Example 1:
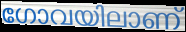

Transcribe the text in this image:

ഗോവയിലാണ്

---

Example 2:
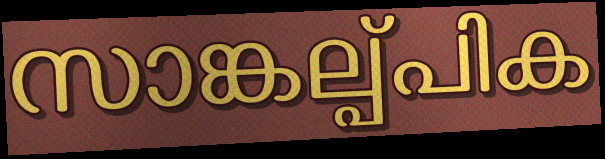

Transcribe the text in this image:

സാങ്കല്പ്പിക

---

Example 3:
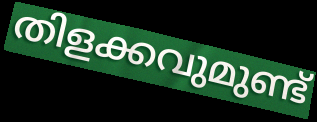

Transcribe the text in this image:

തിളക്കവുമുണ്ട്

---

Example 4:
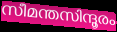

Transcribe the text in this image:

സീമന്തസിന്ദൂരം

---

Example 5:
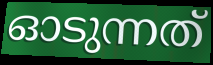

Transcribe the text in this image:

ഓടുന്നത്